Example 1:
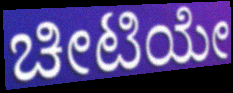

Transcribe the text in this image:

ಚೀಟಿಯೇ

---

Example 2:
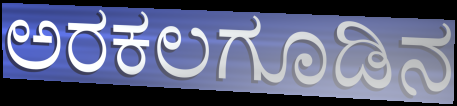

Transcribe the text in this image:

ಅರಕಲಗೂಡಿನ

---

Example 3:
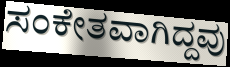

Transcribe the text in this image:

ಸಂಕೇತವಾಗಿದ್ದವು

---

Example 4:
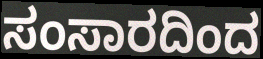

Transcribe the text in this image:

ಸಂಸಾರದಿಂದ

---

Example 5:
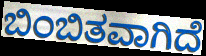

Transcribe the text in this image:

ಬಿಂಬಿತವಾಗಿದೆ